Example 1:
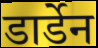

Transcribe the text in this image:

डार्डेन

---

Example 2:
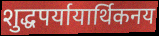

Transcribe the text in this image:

शुद्धपर्यायार्थिकनय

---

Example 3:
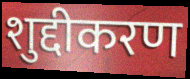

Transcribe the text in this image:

शुद्दीकरण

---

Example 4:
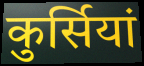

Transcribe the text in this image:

कुर्सियां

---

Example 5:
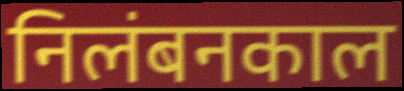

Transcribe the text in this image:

निलंबनकाल